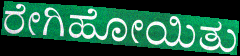
ರೇಗಿಹೋಯಿತು